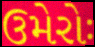
ઉમેરોઃ